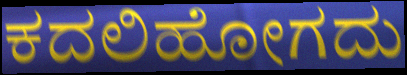
ಕದಲಿಹೋಗದು